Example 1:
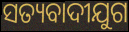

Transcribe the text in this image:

ସତ୍ୟବାଦୀଯୁଗ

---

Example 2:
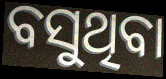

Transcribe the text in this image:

ବସୁଥିବା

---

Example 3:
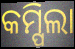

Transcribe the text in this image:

କମ୍ପିଲା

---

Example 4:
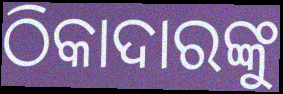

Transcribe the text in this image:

ଠିକାଦାରଙ୍କୁ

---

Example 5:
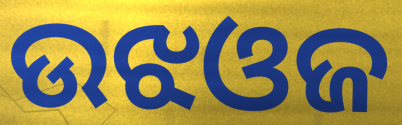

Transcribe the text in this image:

ଉଝଓଜ